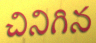
చినిగిన